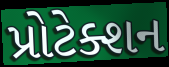
પ્રોટેક્શન